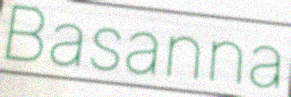
Basanna